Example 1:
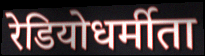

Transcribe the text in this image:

रेडियोधर्मीता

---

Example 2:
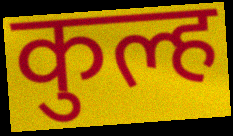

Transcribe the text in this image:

कुल्ह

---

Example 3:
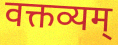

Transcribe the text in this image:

वक्तव्यम्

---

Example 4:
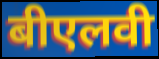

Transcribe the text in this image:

बीएलवी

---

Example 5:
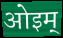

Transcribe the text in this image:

ओइम्